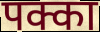
पक्का